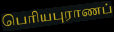
பெரியபுராணப்